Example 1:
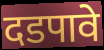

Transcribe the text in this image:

दडपावे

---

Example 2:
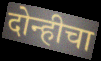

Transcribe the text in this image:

दोन्हीचा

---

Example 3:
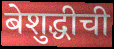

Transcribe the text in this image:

बेशुद्धीची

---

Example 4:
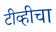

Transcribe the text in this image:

टीव्हीचा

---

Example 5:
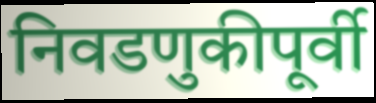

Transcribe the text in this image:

निवडणुकीपूर्वी